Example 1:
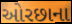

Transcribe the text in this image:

ઓરછાના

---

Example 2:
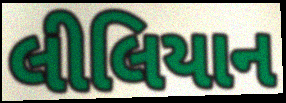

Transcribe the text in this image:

લીલિયાન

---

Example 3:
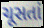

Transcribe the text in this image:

ચૂસતાં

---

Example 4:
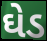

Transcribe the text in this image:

ઘેડ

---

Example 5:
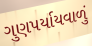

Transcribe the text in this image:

ગુણપર્યાયવાળું